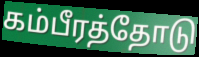
கம்பீரத்தோடு